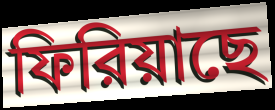
ফিরিয়াছে